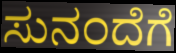
ಸುನಂದೆಗೆ